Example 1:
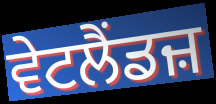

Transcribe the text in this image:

ਵੇਟਲੈਂਡਜ਼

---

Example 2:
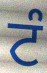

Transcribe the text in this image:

ਟੰ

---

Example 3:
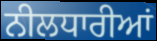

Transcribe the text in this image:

ਨੀਲਧਾਰੀਆਂ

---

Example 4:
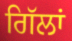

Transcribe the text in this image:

ਗਿੱਲਾਂ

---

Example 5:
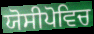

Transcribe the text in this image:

ਯੋਸੀਪੋਵਿਚ